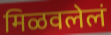
मिळवलेलं